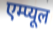
एम्प्यूल